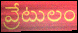
వ్రేటులం